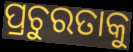
ପ୍ରଚୁରତାକୁ